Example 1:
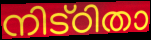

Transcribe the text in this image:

നിട്ഠിതാ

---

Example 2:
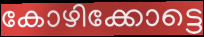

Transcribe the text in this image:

കോഴിക്കോട്ടെ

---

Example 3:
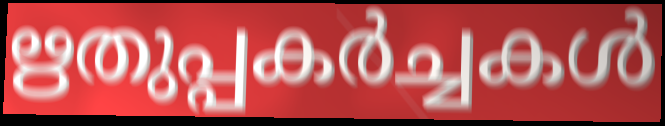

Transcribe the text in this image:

ഋതുപ്പകർച്ചകൾ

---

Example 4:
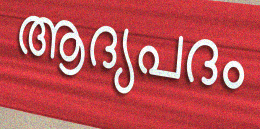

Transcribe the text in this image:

ആദ്യപദം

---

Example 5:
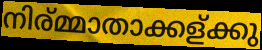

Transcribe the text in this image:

നിര്മ്മാതാക്കള്ക്കു